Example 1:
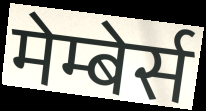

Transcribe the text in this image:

मेम्बेर्स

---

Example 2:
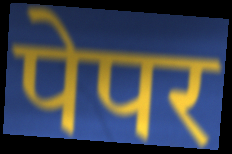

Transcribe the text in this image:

पेपर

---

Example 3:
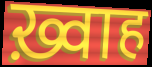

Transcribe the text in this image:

ख़्वाह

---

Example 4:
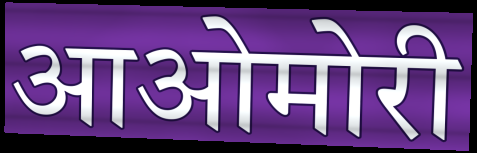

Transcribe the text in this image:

आओमोरी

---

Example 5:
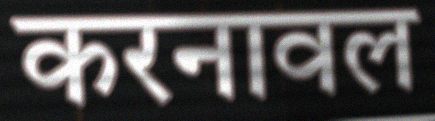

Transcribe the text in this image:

करनावल